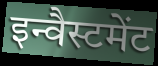
इन्वैस्टमेंट